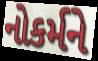
નોકર્મને